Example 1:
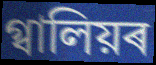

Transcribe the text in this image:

গ্বালিয়ৰ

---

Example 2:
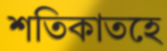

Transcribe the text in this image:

শতিকাতহে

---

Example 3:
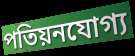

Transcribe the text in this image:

পতিয়নযোগ্য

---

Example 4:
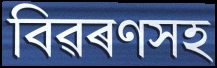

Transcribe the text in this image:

বিৱৰণসহ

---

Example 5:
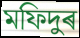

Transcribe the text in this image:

মফিদুৰ